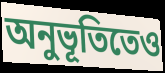
অনুভূতিতেও